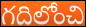
గదిలోంచి